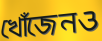
খোঁজেনও